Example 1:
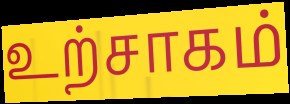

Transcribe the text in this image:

உற்சாகம்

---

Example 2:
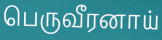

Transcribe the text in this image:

பெருவீரனாய்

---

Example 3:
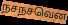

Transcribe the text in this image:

நசநசவென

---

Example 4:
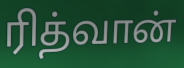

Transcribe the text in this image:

ரித்வான்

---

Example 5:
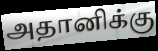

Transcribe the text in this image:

அதானிக்கு